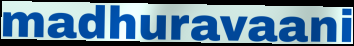
madhuravaani